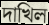
দাখিল